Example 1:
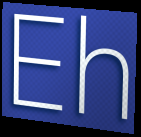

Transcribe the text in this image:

Eh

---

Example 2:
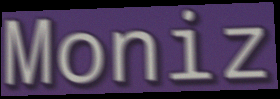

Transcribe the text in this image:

Moniz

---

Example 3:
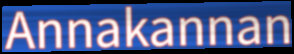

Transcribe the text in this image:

Annakannan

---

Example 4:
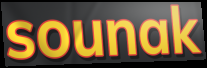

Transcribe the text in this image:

sounak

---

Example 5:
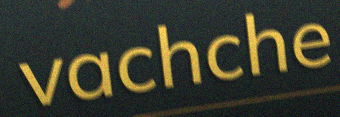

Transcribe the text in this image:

vachche